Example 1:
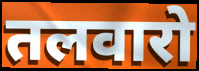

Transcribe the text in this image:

तलवारो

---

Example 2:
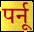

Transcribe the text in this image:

पर्नू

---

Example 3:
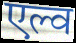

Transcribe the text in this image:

एल्व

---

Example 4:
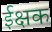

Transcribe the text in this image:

ईक्षक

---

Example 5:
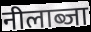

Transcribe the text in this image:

नीलाब्जा